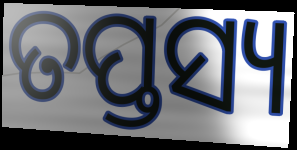
ତପ୍ତସ୍ୟ